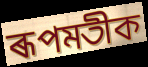
ৰূপমতীক